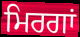
ਮਿਰਗਾਂ